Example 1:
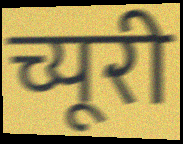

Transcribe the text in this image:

च्यूरी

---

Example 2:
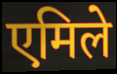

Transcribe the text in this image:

एमिले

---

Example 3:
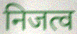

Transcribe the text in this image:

निजत्व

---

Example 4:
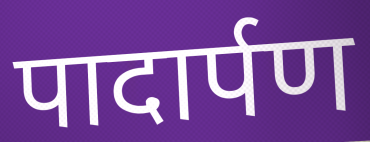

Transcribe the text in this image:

पादार्पण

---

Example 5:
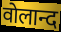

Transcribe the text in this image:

वोलान्द